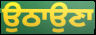
ਉਠਾਉਣਾ